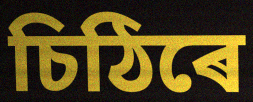
চিঠিৰে